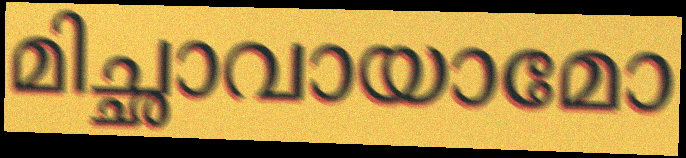
മിച്ഛാവായാമോ